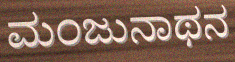
ಮಂಜುನಾಥನ